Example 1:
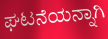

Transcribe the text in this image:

ಘಟನೆಯನ್ನಾಗಿ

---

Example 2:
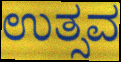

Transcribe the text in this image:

ಉತ್ಸವ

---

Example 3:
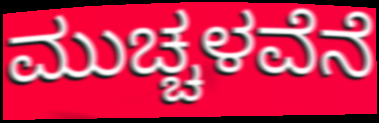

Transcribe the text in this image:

ಮುಚ್ಚಳವೆನೆ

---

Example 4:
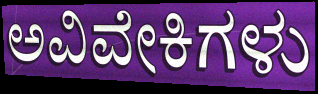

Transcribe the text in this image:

ಅವಿವೇಕಿಗಳು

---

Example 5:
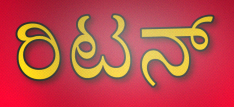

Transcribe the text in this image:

ರಿಟನ್